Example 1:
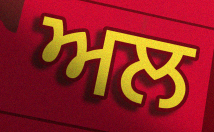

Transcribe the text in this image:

ਅਲ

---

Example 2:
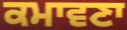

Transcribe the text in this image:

ਕਮਾਵਣਾ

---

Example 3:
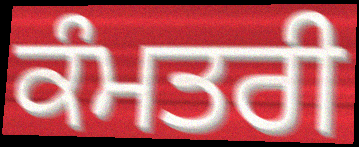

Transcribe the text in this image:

ਕੰਮਤਰੀ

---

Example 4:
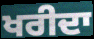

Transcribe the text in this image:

ਖਰੀਦਾ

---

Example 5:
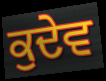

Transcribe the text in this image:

ਕੁਦੇਵ